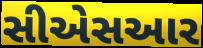
સીએસઆર